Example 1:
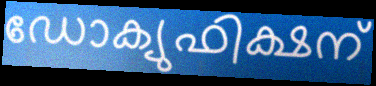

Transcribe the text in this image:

ഡോക്യുഫിക്ഷന്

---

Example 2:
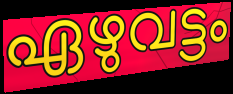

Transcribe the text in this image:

ഏഴുവട്ടം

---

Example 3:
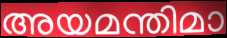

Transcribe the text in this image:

അയമന്തിമാ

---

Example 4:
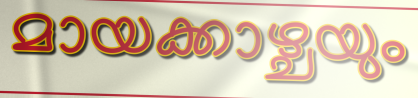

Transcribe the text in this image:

മായക്കാഴ്ചയും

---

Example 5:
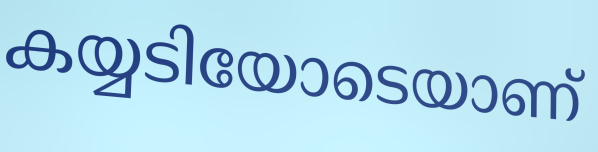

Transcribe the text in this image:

കയ്യടിയോടെയാണ്